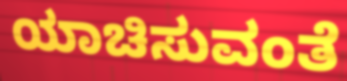
ಯಾಚಿಸುವಂತೆ